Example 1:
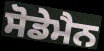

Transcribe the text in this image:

ਸੋਡੇਮੈਨ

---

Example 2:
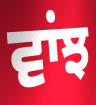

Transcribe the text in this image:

ਵਾਂਝ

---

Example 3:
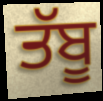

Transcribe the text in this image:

ਤੱਬੂ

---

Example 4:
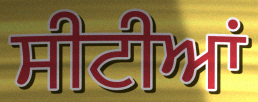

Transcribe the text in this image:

ਸੀਟੀਆਂ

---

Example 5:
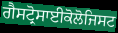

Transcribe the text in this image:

ਗੈਸਟ੍ਰੋਸਾਈਕੋਲੋਜਿਸਟ